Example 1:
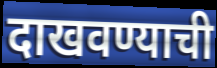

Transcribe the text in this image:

दाखवण्याची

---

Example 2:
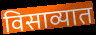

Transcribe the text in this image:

विसाव्यात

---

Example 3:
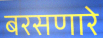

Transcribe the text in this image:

बरसणारे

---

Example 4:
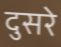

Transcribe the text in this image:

दुसरे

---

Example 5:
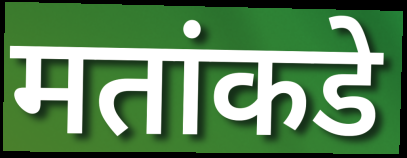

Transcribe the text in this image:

मतांकडे